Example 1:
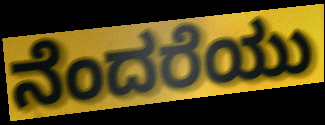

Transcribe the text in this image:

ನೆಂದರೆಯು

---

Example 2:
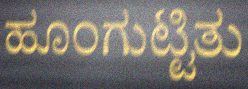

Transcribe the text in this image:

ಹೂಂಗುಟ್ಟಿತು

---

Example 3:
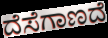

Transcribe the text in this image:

ದೆಸೆಗಾಣದೆ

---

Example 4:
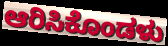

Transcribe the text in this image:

ಆರಿಸಿಕೊಂಡಳು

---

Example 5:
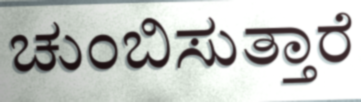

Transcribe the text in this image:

ಚುಂಬಿಸುತ್ತಾರೆ